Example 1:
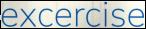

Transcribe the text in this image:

excercise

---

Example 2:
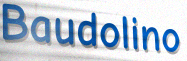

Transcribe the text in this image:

Baudolino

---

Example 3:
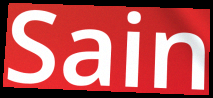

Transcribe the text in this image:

Sain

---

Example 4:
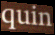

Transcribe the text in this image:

quin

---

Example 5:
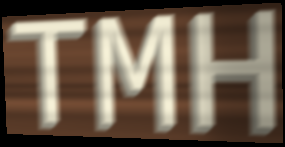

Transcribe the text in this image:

TMH